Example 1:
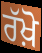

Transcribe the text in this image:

ਰੱਖ਼ੋ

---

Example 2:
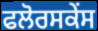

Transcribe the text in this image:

ਫਲੋਰਸਕੇਂਸ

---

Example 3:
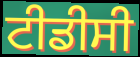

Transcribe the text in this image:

ਟੀਡੀਸੀ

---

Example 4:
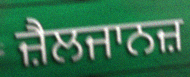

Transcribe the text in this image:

ਜ਼ੈਲਜਾਨਜ਼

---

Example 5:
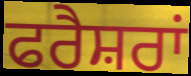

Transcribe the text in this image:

ਫਰੈਸ਼ਰਾਂ